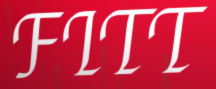
FITT